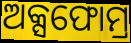
ଅକ୍ସଫୋମ୍ର